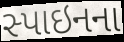
સ્પાઇનના